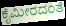
ಕೈಮೀರದಂತೆ